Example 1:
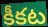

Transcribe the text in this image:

కీకట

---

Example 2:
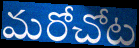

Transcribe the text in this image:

మరోచోట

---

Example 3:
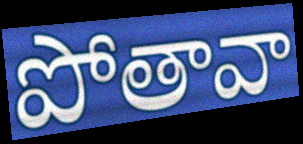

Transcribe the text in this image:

పోతావా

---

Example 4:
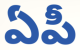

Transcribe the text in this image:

ఏపీ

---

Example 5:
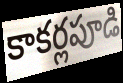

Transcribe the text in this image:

కాకర్లపూడి